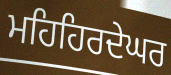
ਮਹਿਹਿਰਦੇਘਰ